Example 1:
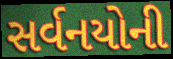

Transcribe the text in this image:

સર્વનયોની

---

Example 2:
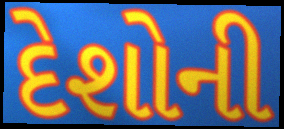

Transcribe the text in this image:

દેશોની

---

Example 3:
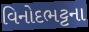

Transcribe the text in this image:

વિનોદભટ્ટના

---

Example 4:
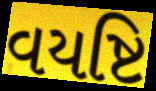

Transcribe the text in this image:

વયષ્ટિ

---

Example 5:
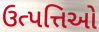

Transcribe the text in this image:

ઉત્પત્તિઓ